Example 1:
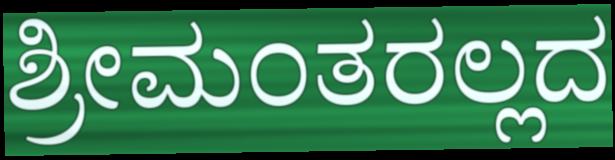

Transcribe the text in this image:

ಶ್ರೀಮಂತರಲ್ಲದ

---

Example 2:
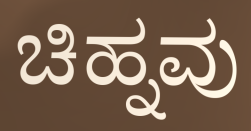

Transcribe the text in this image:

ಚಿಹ್ನವು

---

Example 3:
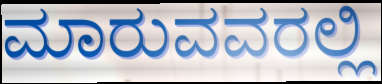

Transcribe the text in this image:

ಮಾರುವವರಲ್ಲಿ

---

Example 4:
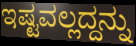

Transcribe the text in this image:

ಇಷ್ಟವಲ್ಲದ್ದನ್ನು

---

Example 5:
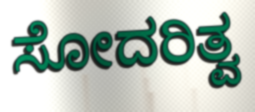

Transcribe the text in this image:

ಸೋದರಿತ್ವ